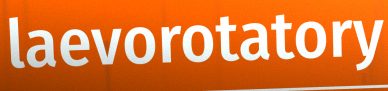
laevorotatory